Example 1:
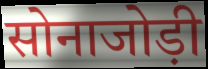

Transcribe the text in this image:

सोनाजोड़ी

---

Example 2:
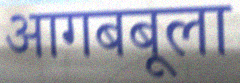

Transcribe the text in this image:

आगबबूला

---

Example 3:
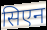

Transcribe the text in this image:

सिएन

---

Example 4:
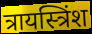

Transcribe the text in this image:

त्रायस्त्रिंश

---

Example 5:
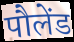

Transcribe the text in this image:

पौलेंड